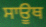
ਸਾਊਥ